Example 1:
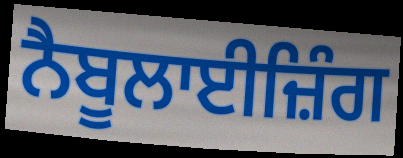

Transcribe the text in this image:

ਨੈਬੂਲਾਈਜ਼ਿੰਗ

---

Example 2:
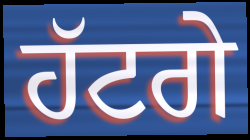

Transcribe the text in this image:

ਹੱਟਗੇ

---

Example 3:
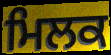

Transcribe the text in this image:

ਮਿਲਕ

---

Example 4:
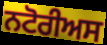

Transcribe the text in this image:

ਨਟੋਰੀਅਸ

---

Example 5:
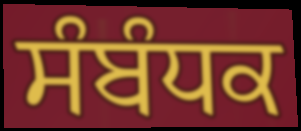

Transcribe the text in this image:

ਸੰਬੰਧਕ